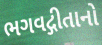
ભગવદ્ગીતાનો